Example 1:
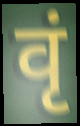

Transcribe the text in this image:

वृं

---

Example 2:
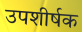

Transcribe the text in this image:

उपशीर्षक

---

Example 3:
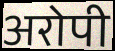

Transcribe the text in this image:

अरोपी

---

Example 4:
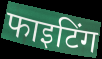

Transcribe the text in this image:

फाइटिंग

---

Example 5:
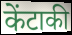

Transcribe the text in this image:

केंटाकी